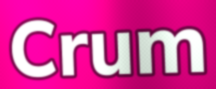
Crum